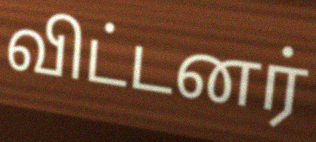
விட்டனர்